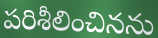
పరిశీలించినను